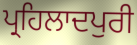
ਪ੍ਰਹਿਲਾਦਪੁਰੀ